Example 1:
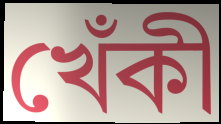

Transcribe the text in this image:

খেঁকী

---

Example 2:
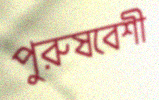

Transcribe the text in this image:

পুরুষবেশী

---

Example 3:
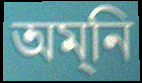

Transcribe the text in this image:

অম্‌নি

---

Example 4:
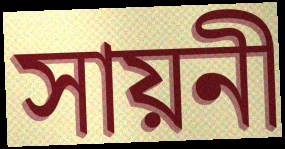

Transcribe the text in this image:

সায়নী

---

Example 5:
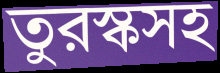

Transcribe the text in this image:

তুরস্কসহ